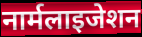
नार्मलाइजेशन